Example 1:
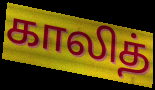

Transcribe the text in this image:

காலித்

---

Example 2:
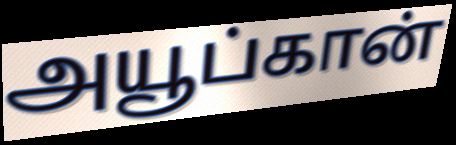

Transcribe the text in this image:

அயூப்கான்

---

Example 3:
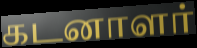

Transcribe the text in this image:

கடனாளர்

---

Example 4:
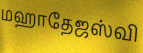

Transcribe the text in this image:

மஹாதேஜஸ்வி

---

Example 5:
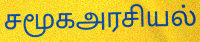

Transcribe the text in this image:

சமூகஅரசியல்